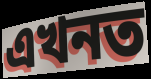
এখনত